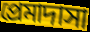
প্রেমাদাসা